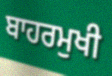
ਬਾਹਰਮੁਖੀ